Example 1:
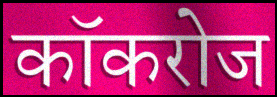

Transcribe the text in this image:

कॉकरोज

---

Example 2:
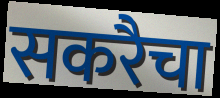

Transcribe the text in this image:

सकरैचा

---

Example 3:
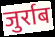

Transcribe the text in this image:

जुर्राब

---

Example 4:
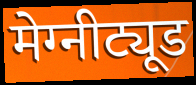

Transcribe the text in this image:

मेग्नीट्यूड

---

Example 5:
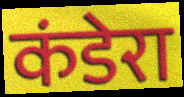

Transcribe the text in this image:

कंडेरा